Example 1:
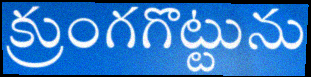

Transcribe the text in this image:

క్రుంగగొట్టును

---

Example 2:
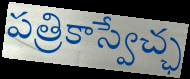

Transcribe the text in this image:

పత్రికాస్వేచ్ఛ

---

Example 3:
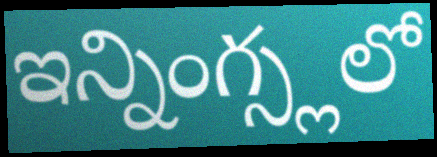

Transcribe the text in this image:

ఇన్నింగ్స్లలో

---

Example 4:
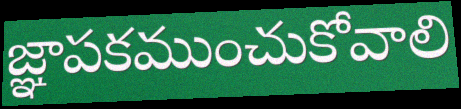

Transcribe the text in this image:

జ్ఞాపకముంచుకోవాలి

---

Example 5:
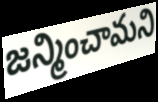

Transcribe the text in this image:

జన్మించామని